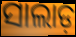
ସାଲାଡ଼